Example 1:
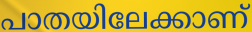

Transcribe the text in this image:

പാതയിലേക്കാണ്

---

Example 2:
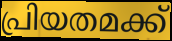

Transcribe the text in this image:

പ്രിയതമക്ക്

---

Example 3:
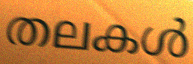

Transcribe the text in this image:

തലകൾ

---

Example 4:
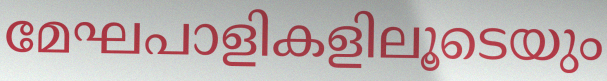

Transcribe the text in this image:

മേഘപാളികളിലൂടെയും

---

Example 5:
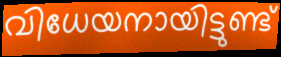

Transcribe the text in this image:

വിധേയനായിട്ടുണ്ട്